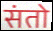
संतो